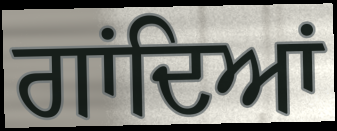
ਗਾਂਦਿਆਂ